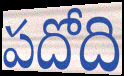
పదోది